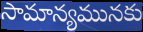
సామాన్యమునకు